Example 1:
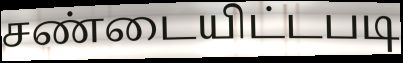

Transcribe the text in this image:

சண்டையிட்டபடி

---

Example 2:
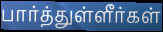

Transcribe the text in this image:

பார்த்துள்ளீர்கள்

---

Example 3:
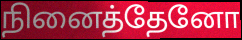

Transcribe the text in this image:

நினைத்தேனோ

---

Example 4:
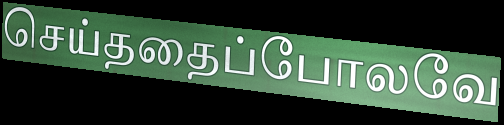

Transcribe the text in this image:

செய்ததைப்போலவே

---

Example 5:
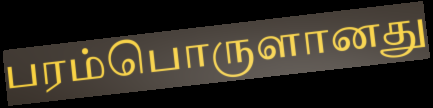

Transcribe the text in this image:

பரம்பொருளானது